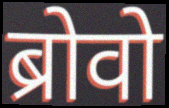
ब्रोवो